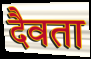
दैवता